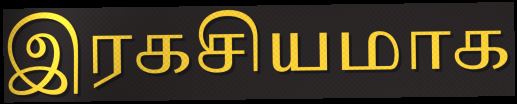
இரகசியமாக